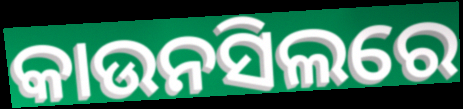
କାଉନସିଲରେ